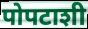
पोपटाशी